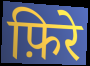
फ़िरे